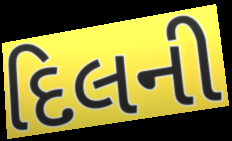
દિલની